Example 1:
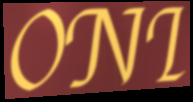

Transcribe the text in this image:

ONI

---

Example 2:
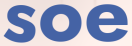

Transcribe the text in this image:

soe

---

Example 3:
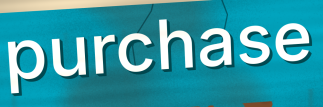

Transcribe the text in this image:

purchase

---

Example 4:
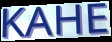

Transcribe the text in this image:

KAHE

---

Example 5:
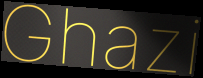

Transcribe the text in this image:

Ghazi